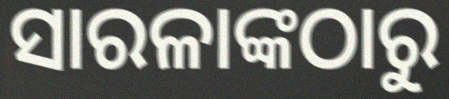
ସାରଳାଙ୍କଠାରୁ